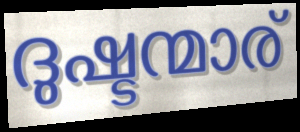
ദുഷ്ടന്മാര്